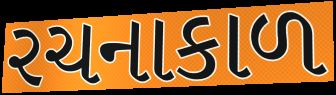
રચનાકાળ